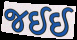
જઈઈ